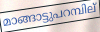
മാങ്ങാട്ടുപറമ്പില്